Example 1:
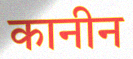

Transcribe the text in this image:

कानीन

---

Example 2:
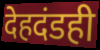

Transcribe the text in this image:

देहदंडही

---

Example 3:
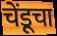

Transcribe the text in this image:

चेंडूचा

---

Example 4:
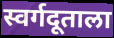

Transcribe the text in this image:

स्वर्गदूताला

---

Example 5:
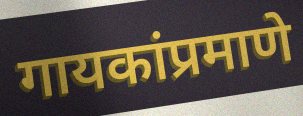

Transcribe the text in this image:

गायकांप्रमाणे